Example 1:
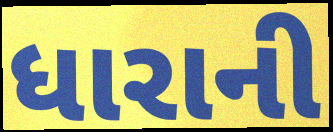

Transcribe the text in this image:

ધારાની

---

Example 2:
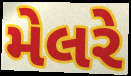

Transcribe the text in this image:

મેલરે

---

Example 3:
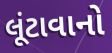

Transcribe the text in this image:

લૂંટાવાનો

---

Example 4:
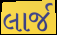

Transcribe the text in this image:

લાર્જ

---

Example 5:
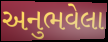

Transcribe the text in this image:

અનુભવેલા